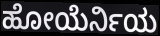
ಹೋಯೆರ್ನಿಯ